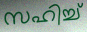
സഹിച്ച്